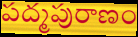
పద్మపురాణం